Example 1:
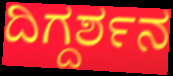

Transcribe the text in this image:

ದಿಗ್ದರ್ಶನ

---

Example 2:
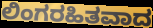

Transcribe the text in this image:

ಲಿಂಗರಹಿತವಾದ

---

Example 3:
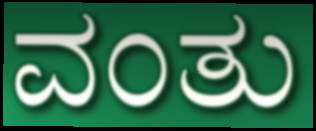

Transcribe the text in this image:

ವಂತು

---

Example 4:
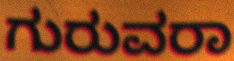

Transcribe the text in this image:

ಗುರುವರಾ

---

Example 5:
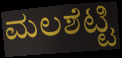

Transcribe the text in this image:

ಮಲಶೆಟ್ಟಿ